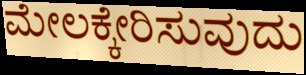
ಮೇಲಕ್ಕೇರಿಸುವುದು